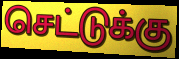
செட்டுக்கு